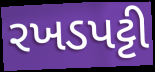
રખડપટ્ટી